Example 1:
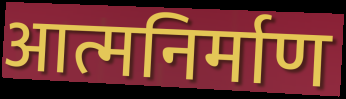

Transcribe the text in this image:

आत्मनिर्माण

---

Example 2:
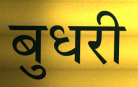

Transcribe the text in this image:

बुधरी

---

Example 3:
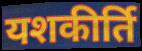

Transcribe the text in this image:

यशकीर्ति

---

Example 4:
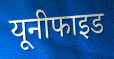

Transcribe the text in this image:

यूनीफाइड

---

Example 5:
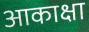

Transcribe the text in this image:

आकाक्षा